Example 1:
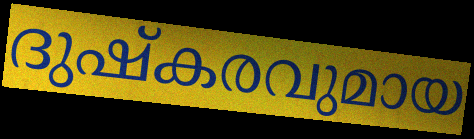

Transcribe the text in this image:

ദുഷ്കരവുമായ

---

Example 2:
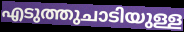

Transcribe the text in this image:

എടുത്തുചാടിയുള്ള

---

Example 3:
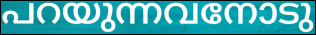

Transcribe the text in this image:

പറയുന്നവനോടു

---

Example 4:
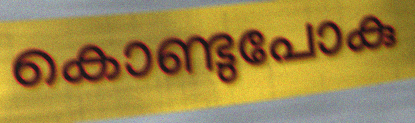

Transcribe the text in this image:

കൊണ്ടുപോകു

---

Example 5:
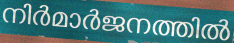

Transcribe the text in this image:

നിർമാർജനത്തിൽ